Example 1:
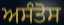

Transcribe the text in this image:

ਅਸੰਤੋਸ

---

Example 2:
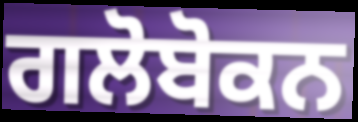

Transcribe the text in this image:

ਗਲੋਬੋਕਨ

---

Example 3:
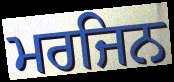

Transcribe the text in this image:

ਮਰਜਿਨ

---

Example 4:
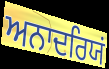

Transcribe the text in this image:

ਅਨਾਦਰਿਯਂ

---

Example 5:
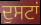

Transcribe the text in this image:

ਦੁਸਟਾਂ